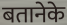
बतानेके